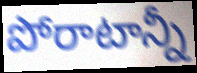
పోరాటాన్నీ